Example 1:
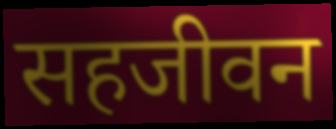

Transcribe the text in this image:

सहजीवन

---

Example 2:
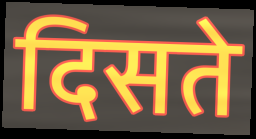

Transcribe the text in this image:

दिसते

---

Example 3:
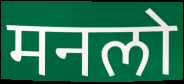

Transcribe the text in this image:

मनलो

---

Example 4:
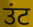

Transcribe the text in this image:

उंट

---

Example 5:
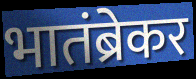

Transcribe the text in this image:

भातंब्रेकर